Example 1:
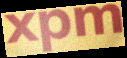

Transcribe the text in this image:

xpm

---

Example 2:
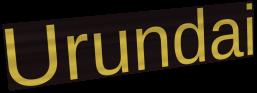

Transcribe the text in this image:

Urundai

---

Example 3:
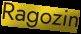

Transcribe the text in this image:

Ragozin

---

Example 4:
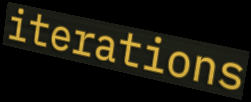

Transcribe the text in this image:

iterations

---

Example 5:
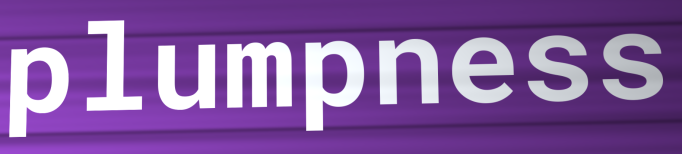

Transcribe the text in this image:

plumpness